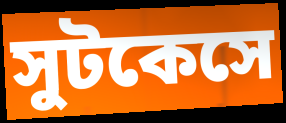
সুটকেসে